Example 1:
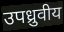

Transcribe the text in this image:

उपध्रुवीय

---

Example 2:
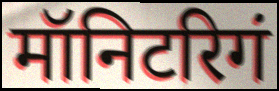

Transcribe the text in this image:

मॉनिटरिगं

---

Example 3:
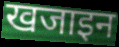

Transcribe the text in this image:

खजाइन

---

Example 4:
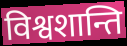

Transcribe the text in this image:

विश्वशान्ति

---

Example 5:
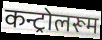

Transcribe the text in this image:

कन्ट्रोलरूम